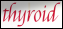
thyroid